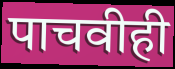
पाचवीही